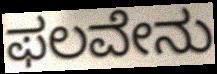
ಫಲವೇನು